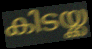
കിടയ്ക്ക